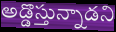
అడ్డొస్తున్నాడని